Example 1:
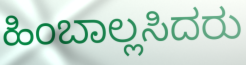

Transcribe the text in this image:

ಹಿಂಬಾಲ್ಲಸಿದರು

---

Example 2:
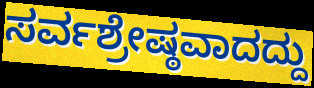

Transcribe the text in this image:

ಸರ್ವಶ್ರೇಷ್ಠವಾದದ್ದು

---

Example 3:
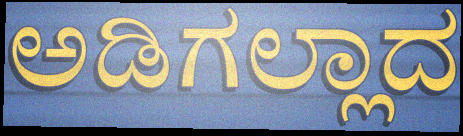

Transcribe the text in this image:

ಅಡಿಗಲ್ಲಾದ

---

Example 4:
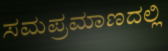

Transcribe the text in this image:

ಸಮಪ್ರಮಾಣದಲ್ಲಿ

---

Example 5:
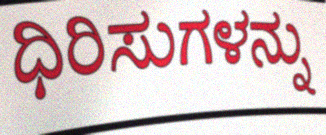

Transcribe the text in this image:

ಧಿರಿಸುಗಳನ್ನು